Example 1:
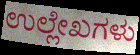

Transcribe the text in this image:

ಉಲ್ಲೇಖಗಳು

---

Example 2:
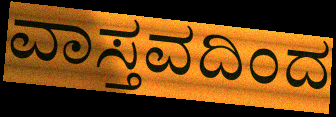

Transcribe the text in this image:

ವಾಸ್ತವದಿಂದ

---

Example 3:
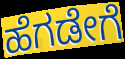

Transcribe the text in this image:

ಹೆಗಡೇಗೆ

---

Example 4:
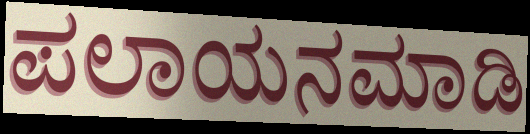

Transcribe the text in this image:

ಪಲಾಯನಮಾಡಿ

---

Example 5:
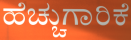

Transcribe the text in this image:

ಹೆಚ್ಚುಗಾರಿಕೆ